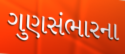
ગુણસંભારના